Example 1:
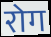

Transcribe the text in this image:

रोग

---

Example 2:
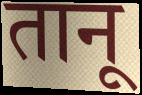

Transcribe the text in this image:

तानू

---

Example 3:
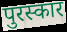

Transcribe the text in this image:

पुरस्कार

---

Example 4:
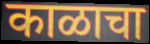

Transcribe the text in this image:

काळाचा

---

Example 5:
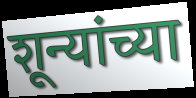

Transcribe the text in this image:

शून्यांच्या